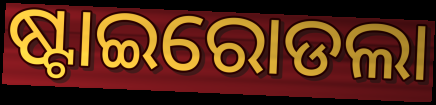
ଷ୍ଟାଇରୋଡଲା